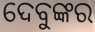
ଦେବୁଙ୍କର